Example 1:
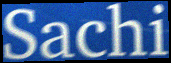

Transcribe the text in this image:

Sachi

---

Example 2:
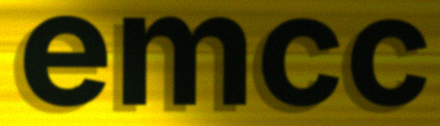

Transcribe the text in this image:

emcc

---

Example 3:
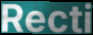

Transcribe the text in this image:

Recti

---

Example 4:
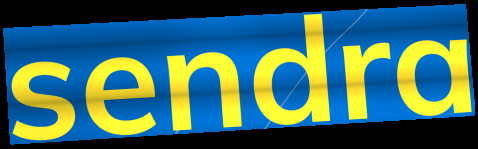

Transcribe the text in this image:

sendra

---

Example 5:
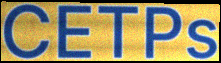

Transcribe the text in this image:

CETPs